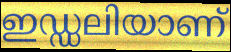
ഇഡ്ഡലിയാണ്